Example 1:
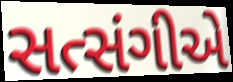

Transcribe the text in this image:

સત્સંગીએ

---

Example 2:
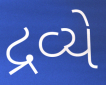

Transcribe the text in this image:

દ્રવ્યે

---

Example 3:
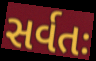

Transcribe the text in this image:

સર્વતઃ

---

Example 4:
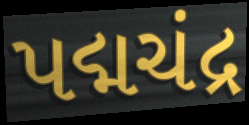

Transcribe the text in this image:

પદ્મચંદ્ર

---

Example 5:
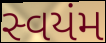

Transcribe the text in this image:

સ્વયંમ